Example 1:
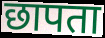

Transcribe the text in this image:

छापता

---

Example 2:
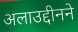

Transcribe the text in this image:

अलाउद्दीनने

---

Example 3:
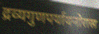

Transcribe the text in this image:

द्रव्यगुणपर्यायनोरास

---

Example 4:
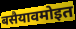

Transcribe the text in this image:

बसैयावमोइत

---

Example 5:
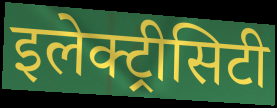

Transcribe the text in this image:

इलेक्ट्रीसिटी